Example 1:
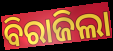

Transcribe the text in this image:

ବିରାଜିଲା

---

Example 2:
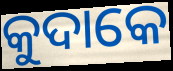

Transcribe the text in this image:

କୁଦାକେ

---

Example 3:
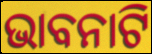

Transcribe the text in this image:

ଭାବନାଟି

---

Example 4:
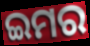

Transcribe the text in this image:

ଇମର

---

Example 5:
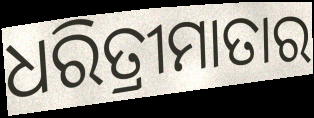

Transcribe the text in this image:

ଧରିତ୍ରୀମାତାର